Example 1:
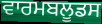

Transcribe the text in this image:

ਵਾਰਮਬਲੂਡਸ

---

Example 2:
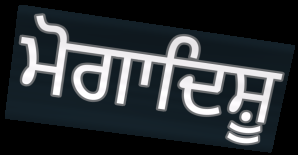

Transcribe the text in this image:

ਮੋਗਾਦਿਸ਼ੂ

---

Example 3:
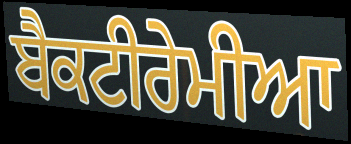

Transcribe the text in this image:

ਬੈਕਟੀਰੇਮੀਆ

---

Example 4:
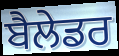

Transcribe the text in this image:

ਬੈਲੇਡਰ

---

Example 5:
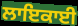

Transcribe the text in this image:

ਲਾਇਕਾਈ